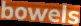
bowels